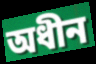
অধীন